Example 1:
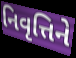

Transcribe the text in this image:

નિવૃત્તિને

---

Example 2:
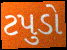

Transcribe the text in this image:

ટપુડો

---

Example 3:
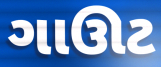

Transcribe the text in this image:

ગાઊટ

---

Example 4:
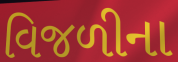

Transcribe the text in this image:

વિજળીના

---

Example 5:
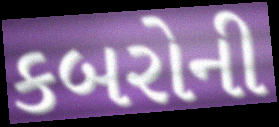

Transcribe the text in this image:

કબરોની